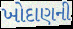
ખોદાણની